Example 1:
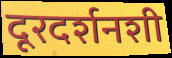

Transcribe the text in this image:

दूरदर्शनशी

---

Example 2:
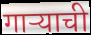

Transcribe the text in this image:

गाऱ्याची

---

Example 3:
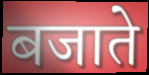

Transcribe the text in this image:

बजाते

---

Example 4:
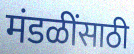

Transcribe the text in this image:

मंडळींसाठी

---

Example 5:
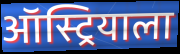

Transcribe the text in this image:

ऑस्ट्रियाला